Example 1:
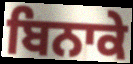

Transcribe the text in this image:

ਬਿਨਾਕੇ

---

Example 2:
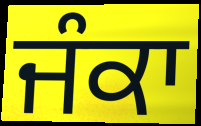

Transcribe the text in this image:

ਜੰਕਾ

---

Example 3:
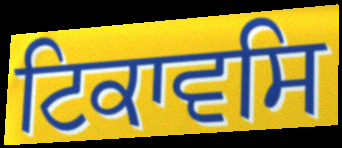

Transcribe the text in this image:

ਟਿਕਾਵਸਿ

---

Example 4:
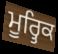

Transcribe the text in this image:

ਮੂਰ੍ਤਿਕ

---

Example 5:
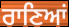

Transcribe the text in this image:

ਰਾਣਿਆਂ